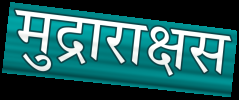
मुद्राराक्षस